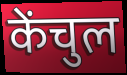
केंचुल